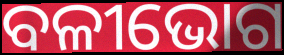
ବଳୀଭୋଗ